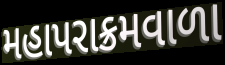
મહાપરાક્રમવાળા